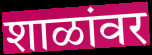
शाळांवर